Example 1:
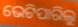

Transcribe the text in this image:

ଭେଟିପାରିଲୁ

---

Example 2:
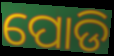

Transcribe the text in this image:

ପୋଡି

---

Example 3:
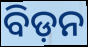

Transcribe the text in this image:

ବିଡ଼ନ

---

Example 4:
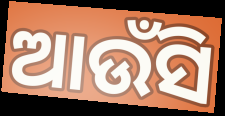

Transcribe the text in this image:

ଆଉଁସି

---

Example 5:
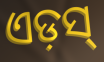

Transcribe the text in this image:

ଏଡ଼ସ୍